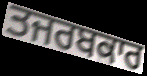
ਤਜਰਬਕਾਰ